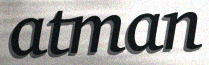
atman